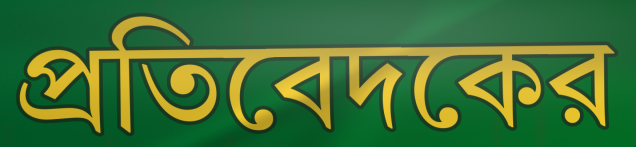
প্রতিবেদকের